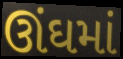
ઊંઘમાં